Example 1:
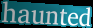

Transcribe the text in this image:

haunted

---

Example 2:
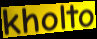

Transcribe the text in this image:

kholto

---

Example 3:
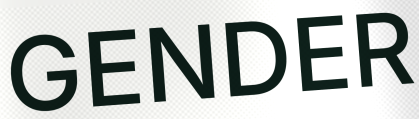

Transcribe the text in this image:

GENDER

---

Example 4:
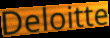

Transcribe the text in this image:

Deloitte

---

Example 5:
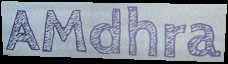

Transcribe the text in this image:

AMdhra